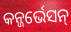
କନ୍ଜର୍ଭେସନ୍